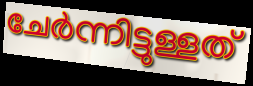
ചേർന്നിട്ടുള്ളത്